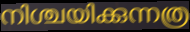
നിശ്ചയിക്കുന്നത്ര